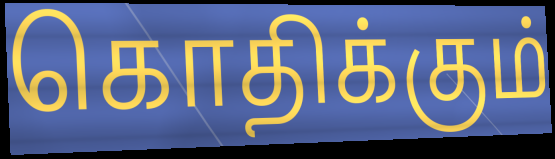
கொதிக்கும்